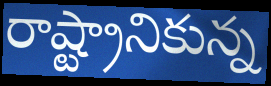
రాష్ట్రానికున్న